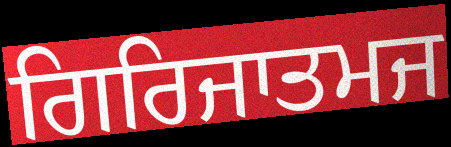
ਗਿਰਿਜਾਤਮਜ